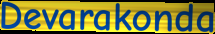
Devarakonda